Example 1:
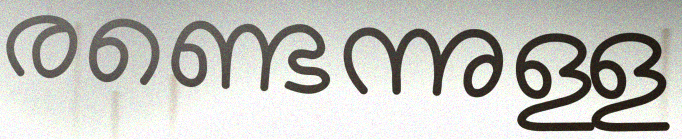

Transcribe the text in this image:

രണ്ടെന്നുള്ള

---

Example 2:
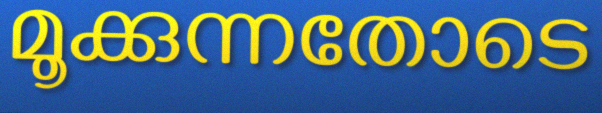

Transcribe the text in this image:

മൂക്കുന്നതോടെ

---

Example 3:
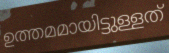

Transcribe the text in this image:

ഉത്തമമായിട്ടുള്ളത്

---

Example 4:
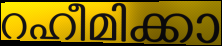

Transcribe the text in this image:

റഹീമിക്കാ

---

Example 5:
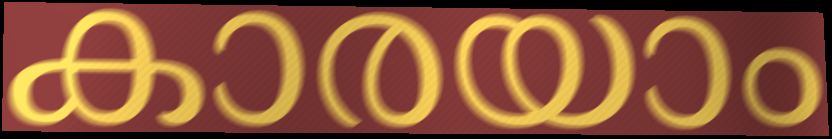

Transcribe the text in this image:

കാരയാം